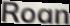
Roan